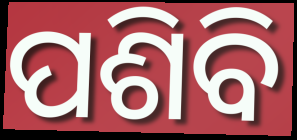
ପଶିବି